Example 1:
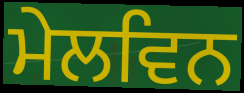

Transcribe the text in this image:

ਮੇਲਵਿਨ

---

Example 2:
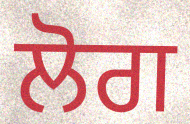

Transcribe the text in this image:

ਲੋਗ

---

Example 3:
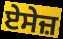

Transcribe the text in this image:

ਏਸੇਜ਼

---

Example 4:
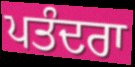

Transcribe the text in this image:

ਪਤੰਦਰਾ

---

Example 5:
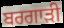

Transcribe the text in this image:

ਬਰਗਾੜੀ